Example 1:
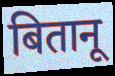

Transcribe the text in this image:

बितानू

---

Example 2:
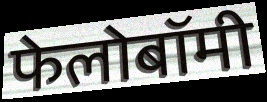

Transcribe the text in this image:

फेलोबॉमी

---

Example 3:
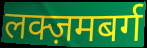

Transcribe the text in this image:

लक्ज़मबर्ग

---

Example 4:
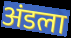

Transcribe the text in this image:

अंडला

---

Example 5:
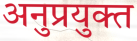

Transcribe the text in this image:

अनुप्रयुक्त